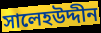
সালেহউদ্দীন